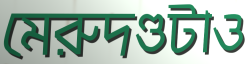
মেরুদণ্ডটাও